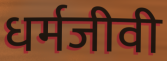
धर्मजीवी